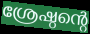
ശ്രേഷ്ഠന്റെ